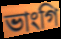
ভাংগি